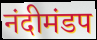
नंदीमंडप